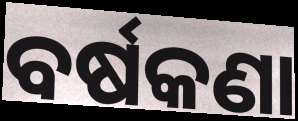
ବର୍ଷକଣା